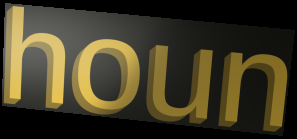
houn